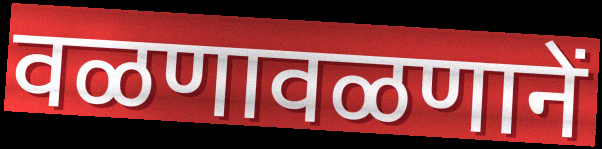
वळणावळणानें